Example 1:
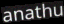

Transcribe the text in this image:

anathu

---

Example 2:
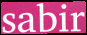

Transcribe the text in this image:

sabir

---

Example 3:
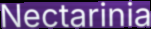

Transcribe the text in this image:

Nectarinia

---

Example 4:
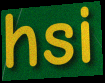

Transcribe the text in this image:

hsi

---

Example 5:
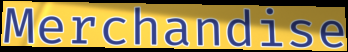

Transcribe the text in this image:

Merchandise